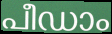
പീഡാം